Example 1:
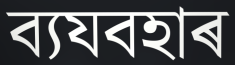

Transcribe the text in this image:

ব্যযবহাৰ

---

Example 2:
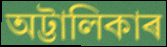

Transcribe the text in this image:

অট্টালিকাৰ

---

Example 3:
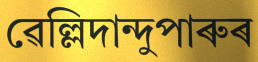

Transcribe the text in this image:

ৱেল্লিদান্দুপাৰুৰ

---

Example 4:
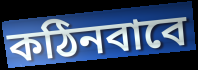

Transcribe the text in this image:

কঠিনবাবে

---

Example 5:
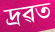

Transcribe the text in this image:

দ্ৰৱত